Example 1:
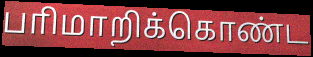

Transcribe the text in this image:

பரிமாறிக்கொண்ட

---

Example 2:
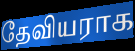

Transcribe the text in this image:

தேவியராக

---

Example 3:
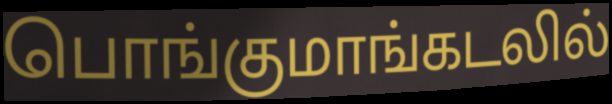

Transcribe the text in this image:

பொங்குமாங்கடலில்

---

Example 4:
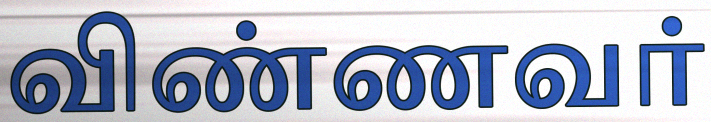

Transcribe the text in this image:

விண்ணவர்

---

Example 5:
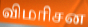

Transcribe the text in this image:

விமரிசன